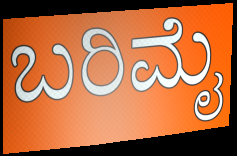
ಬರಿಮೈ